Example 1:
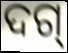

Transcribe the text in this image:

ଦଗ୍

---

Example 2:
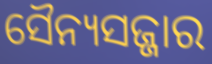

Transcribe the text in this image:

ସୈନ୍ୟସଜ୍ଜାର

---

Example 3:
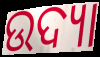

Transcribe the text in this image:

ଉଦ୍ୟା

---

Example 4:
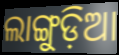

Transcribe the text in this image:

ଲାଙ୍ଗୁଡ଼ିଆ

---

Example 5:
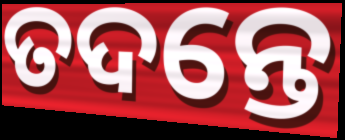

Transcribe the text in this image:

ତଦନ୍ତେ